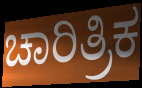
ಚಾರಿತ್ರಿಕ